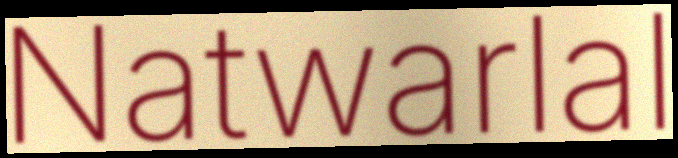
Natwarlal